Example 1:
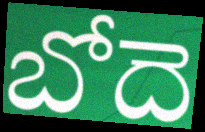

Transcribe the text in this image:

బోదె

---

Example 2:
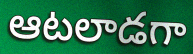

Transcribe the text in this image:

ఆటలాడగా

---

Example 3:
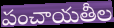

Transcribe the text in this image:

పంచాయతీల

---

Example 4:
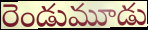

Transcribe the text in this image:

రెండుమూడు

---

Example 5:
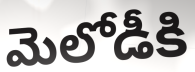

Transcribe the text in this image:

మెలోడీకి